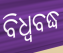
ବିଧ୍ଵବଦ୍ଧ